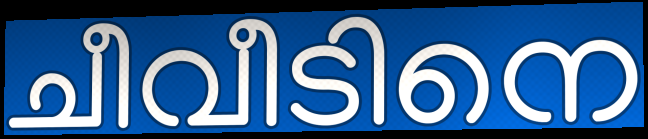
ചീവീടിനെ